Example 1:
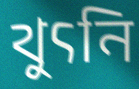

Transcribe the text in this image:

থুৎনি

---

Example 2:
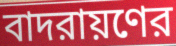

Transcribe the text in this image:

বাদরায়ণের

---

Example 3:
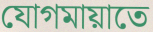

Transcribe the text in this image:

যোগমায়াতে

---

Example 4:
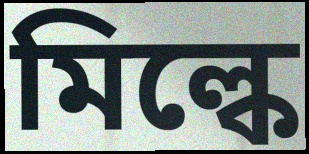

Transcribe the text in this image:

মিল্কে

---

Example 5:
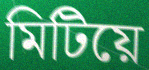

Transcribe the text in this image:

মিটিয়ে